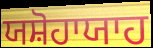
ਯਸ਼ੋਹਾਯਾਹ